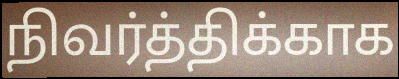
நிவர்த்திக்காக